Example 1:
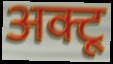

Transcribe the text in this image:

अक्टू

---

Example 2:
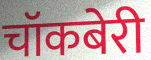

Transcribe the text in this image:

चॉकबेरी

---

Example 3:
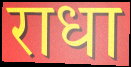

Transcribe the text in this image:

राधा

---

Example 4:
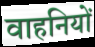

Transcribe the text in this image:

वाहनियों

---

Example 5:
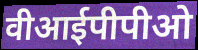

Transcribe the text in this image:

वीआईपीपीओ